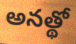
అనత్థో